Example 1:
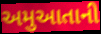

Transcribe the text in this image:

અમુઆતાની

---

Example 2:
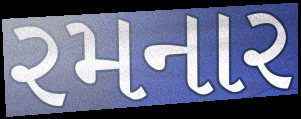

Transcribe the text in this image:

રમનાર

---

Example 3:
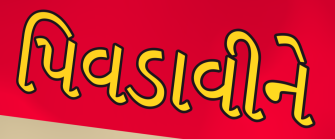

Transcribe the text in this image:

પિવડાવીને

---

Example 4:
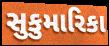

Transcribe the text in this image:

સુકુમારિકા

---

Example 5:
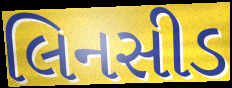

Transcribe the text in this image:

લિનસીડ